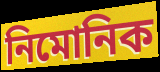
নিমোনিক